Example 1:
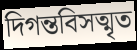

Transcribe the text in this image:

দিগন্তবিসত্মৃত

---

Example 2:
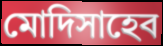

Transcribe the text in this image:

মোদিসাহেব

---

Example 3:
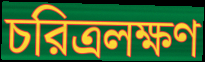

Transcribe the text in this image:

চরিত্রলক্ষণ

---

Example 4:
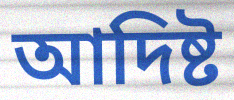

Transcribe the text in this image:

আদিষ্ট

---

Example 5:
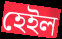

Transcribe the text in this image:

হেইল